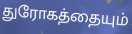
துரோகத்தையும்